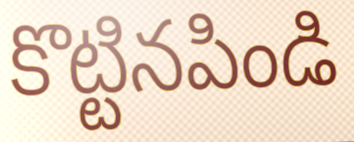
కొట్టినపిండి